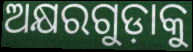
ଅକ୍ଷରଗୁଡ଼ାକୁ